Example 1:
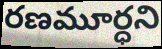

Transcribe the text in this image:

రణమూర్ధని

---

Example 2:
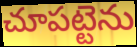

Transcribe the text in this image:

చూపట్టెను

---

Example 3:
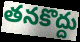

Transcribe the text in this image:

తనకొద్దు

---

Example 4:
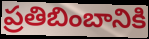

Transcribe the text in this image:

ప్రతిబింబానికి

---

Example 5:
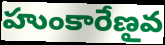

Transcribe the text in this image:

హుంకారేణౖవ